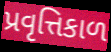
પ્રવૃત્તિકાળ